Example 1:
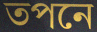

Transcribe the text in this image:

তপনে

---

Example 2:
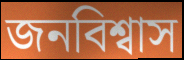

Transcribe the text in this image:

জনবিশ্বাস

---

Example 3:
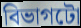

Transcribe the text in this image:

বিভাগটো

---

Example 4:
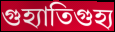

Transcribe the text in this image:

গুহ্যাতিগুহ্য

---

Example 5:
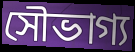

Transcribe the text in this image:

সৌভাগ্য